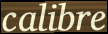
calibre